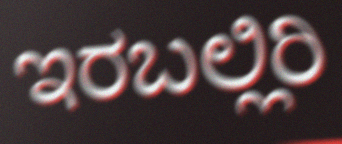
ಇರಬಲ್ಲಿರಿ